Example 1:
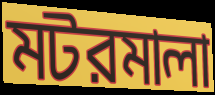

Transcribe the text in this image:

মটরমালা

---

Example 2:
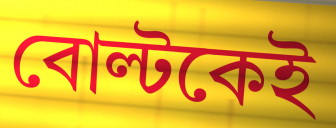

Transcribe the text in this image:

বোল্টকেই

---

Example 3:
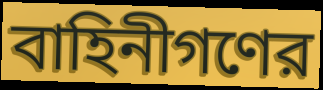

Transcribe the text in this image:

বাহিনীগণের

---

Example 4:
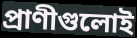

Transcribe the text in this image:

প্রাণীগুলোই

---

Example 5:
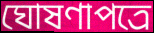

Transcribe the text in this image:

ঘোষণাপত্রে